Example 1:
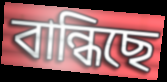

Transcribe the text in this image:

বান্ধিছে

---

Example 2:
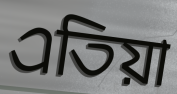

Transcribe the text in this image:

এতিয়া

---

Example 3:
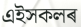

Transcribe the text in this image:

এইসকলৰ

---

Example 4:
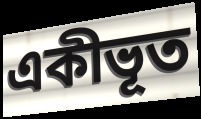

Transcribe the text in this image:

একীভূত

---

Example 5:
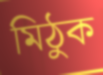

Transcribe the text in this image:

মিঠুক